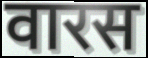
वारस